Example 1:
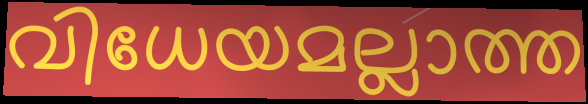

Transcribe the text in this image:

വിധേയമല്ലാത്ത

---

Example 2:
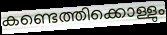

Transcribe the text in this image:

കണ്ടെത്തിക്കൊള്ളും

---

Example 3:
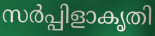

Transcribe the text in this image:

സർപ്പിളാകൃതി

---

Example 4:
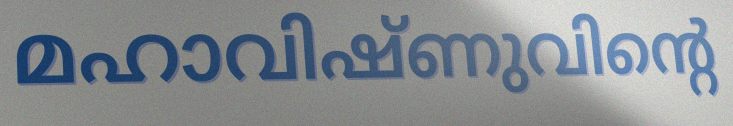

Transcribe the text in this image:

മഹാവിഷ്ണുവിന്റെ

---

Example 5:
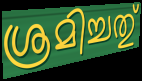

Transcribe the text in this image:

ശ്രമിച്ചതു്